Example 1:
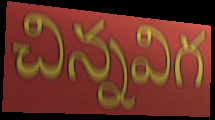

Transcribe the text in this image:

చిన్నవిగ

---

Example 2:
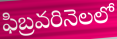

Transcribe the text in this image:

ఫిబ్రవరినెలలో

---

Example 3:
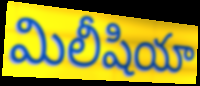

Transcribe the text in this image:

మిలీషియా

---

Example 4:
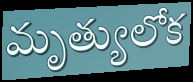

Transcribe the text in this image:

మృత్యులోక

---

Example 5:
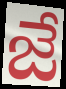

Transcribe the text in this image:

జే